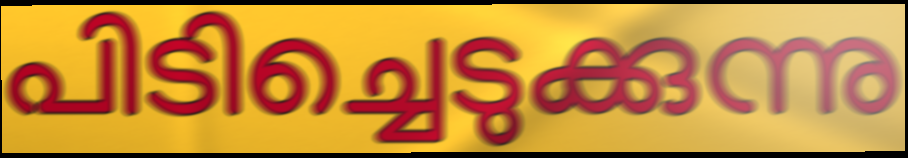
പിടിച്ചെടുക്കുന്നു